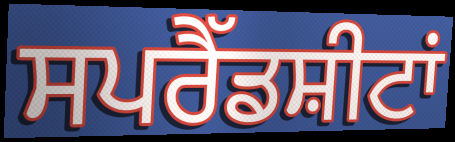
ਸਪਰੈੱਡਸ਼ੀਟਾਂ